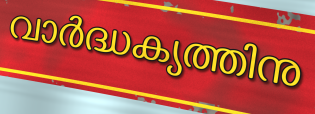
വാർദ്ധക്യത്തിനു